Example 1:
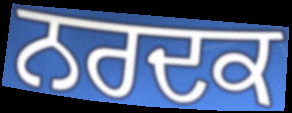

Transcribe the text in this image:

ਨਰਦਕ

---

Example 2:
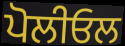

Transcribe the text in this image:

ਪੋਲੀਓਲ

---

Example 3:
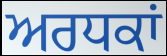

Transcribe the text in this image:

ਅਰਧਕਾਂ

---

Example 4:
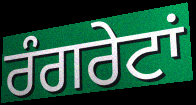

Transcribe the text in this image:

ਰੰਗਰੇਟਾਂ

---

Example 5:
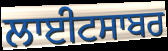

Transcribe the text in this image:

ਲਾਈਟਸਾਬਰ